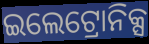
ଇଲେଟ୍ରୋନିକ୍ସ